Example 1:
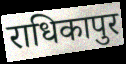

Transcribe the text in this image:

राधिकापुर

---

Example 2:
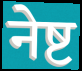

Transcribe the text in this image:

नेष्ट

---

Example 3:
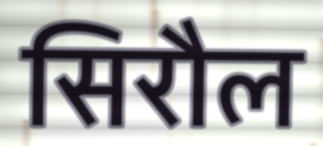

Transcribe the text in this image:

सिरौल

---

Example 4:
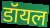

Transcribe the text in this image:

डॉयल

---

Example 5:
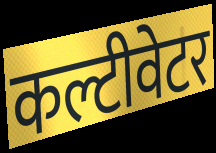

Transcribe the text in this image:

कल्टीवेटर